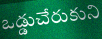
ఒడ్డుచేరుకుని